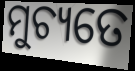
ମୁଚ୍ୟତେ